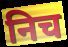
निच